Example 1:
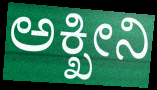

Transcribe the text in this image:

ಅಕ್ಖೀನಿ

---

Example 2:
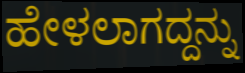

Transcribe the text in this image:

ಹೇಳಲಾಗದ್ದನ್ನು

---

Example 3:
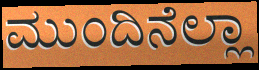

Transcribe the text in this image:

ಮುಂದಿನೆಲ್ಲಾ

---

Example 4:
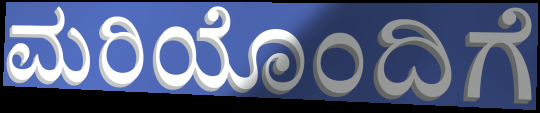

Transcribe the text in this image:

ಮರಿಯೊಂದಿಗೆ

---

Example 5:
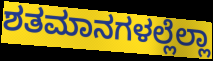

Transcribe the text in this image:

ಶತಮಾನಗಳಲ್ಲೆಲ್ಲಾ